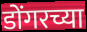
डोंगरच्या